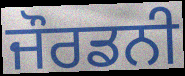
ਜੌਰਡਨੀ